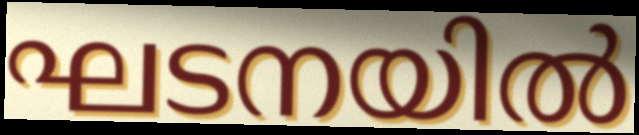
ഘടനയിൽ